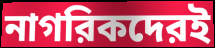
নাগরিকদেরই